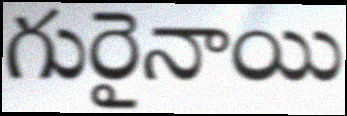
గురైనాయి